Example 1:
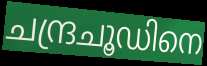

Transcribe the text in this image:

ചന്ദ്രചൂഡിനെ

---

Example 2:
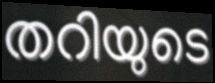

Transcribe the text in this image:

തറിയുടെ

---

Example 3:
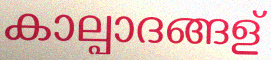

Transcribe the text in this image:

കാല്പാദങ്ങള്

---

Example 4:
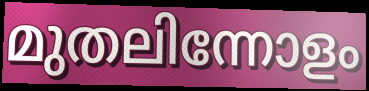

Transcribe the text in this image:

മുതലിന്നോളം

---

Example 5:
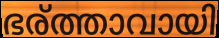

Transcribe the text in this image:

ഭര്ത്താവായി